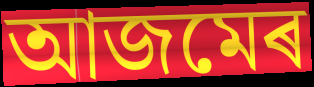
আজমেৰ